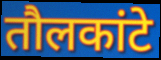
तौलकांटे